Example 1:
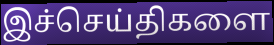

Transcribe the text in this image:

இச்செய்திகளை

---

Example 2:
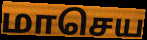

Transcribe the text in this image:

மாசெய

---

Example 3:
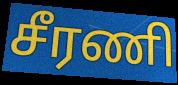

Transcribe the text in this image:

சீரணி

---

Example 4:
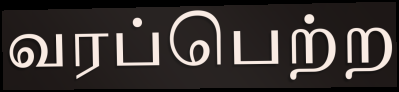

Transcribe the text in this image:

வரப்பெற்ற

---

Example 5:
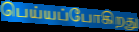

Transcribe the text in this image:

பெய்யப்போகிறது